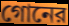
গোনের